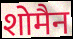
शोमैन